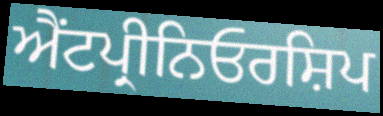
ਐਂਟਪ੍ਰੀਨਿਓਰਸ਼ਿਪ